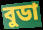
বুডা